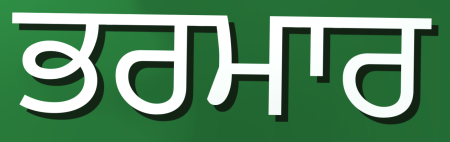
ਭਰਮਾਰ